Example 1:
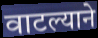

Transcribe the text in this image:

वाटल्याने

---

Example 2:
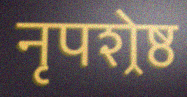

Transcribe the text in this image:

नृपश्रेष्ठ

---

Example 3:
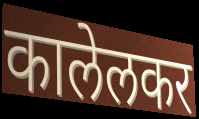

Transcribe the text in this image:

कालेलकर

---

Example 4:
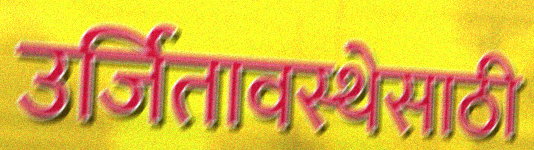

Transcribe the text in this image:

उर्जितावस्थेसाठी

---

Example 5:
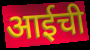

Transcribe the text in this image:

आईची